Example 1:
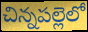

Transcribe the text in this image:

చిన్నపల్లెలో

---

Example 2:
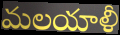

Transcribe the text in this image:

మలయాళీ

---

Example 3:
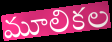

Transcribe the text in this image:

మూలికల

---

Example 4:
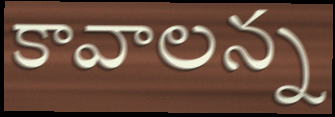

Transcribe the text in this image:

కావాలన్న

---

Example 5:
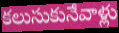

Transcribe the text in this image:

కలుసుకునేవాళ్లు